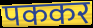
पककर